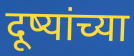
दूष्यांच्या